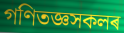
গণিতজ্ঞসকলৰ